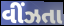
વીંઝતા